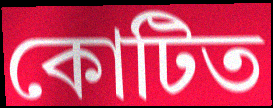
কোটিত